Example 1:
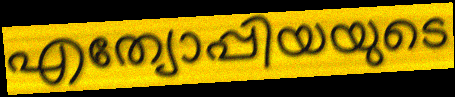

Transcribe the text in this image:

എത്യോപ്പിയയുടെ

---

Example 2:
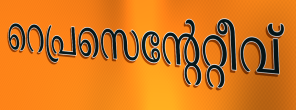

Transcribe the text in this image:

റെപ്രസെന്റേറ്റീവ്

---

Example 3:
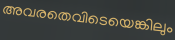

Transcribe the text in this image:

അവരതെവിടെയെങ്കിലും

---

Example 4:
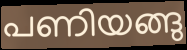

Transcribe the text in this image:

പണിയങ്ങു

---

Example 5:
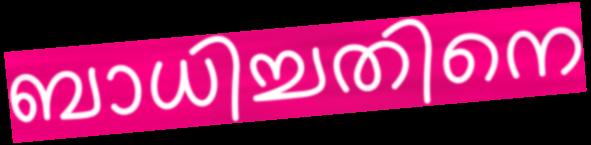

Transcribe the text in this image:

ബാധിച്ചതിനെ